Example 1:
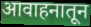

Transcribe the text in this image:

आवाहनातून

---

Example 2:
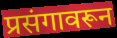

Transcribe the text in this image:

प्रसंगावरून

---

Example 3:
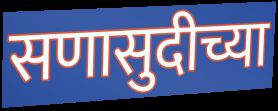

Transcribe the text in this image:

सणासुदीच्या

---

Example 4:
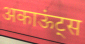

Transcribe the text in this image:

अकाऊंट्स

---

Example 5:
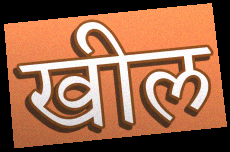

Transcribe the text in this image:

खील